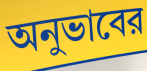
অনুভাবের